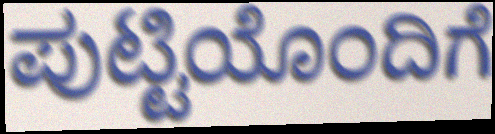
ಪುಟ್ಟಿಯೊಂದಿಗೆ